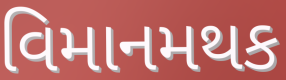
વિમાનમથક